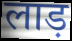
लाड़